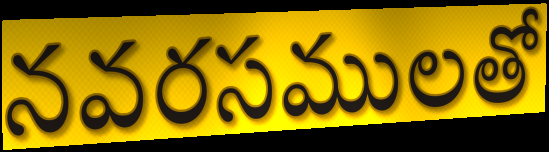
నవరసములతో